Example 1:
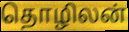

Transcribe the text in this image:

தொழிலன்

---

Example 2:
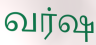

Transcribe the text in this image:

வர்ஷ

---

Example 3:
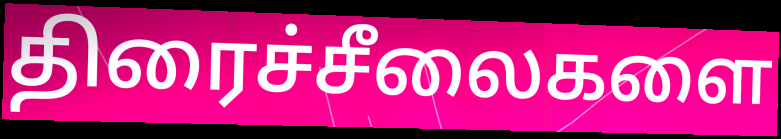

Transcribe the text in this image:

திரைச்சீலைகளை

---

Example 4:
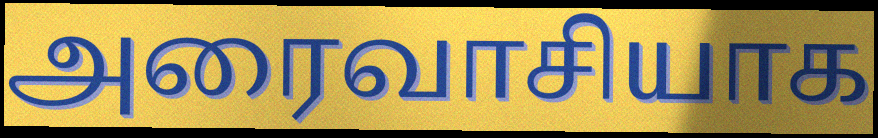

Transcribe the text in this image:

அரைவாசியாக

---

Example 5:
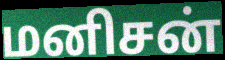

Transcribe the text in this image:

மனிசன்